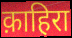
क़ाहिरा